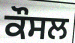
ਕੌਸਲ